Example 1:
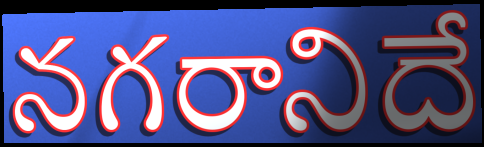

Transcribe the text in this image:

నగరానిదే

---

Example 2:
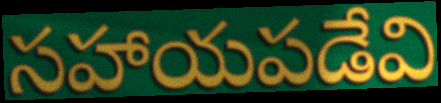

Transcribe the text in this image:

సహాయపడేవి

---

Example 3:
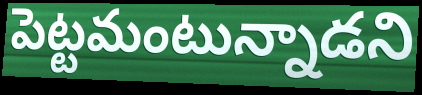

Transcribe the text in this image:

పెట్టమంటున్నాడని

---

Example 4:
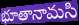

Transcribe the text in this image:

భూతానామసి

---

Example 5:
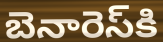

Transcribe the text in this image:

బెనారెస్‌కి